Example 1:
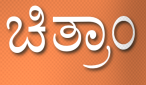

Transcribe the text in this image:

ಚಿತ್ರಾಂ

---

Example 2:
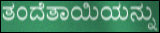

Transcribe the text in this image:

ತಂದೆತಾಯಿಯನ್ನು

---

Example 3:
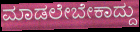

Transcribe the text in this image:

ಮಾಡಲೇಬೇಕಾದ್ದು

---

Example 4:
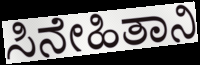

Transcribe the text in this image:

ಸಿನೇಹಿತಾನಿ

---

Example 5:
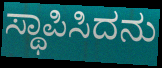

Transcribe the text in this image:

ಸ್ಥಾಪಿಸಿದನು